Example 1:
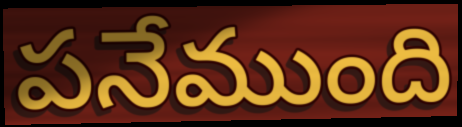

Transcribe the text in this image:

పనేముంది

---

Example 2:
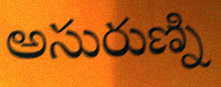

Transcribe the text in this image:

అసురుణ్ని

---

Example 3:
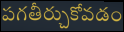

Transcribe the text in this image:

పగతీర్చుకోవడం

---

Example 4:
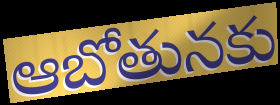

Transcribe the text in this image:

ఆబోతునకు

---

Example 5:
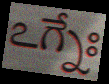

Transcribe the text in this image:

ఽగ్నేః